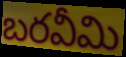
బరవీమి